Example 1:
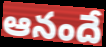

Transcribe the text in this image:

ఆనందే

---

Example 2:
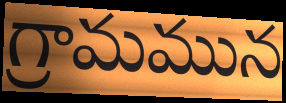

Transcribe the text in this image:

గ్రామమున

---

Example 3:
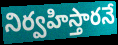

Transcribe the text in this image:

నిర్వహిస్తారనే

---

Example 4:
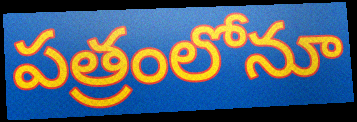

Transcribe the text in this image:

పత్రంలోనూ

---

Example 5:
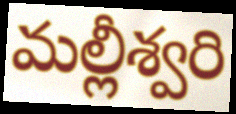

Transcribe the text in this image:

మల్లీశ్వరి